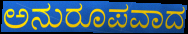
ಅನುರೂಪವಾದ